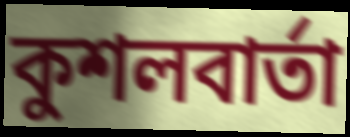
কুশলবার্তা